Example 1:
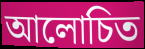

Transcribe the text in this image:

আলোচিত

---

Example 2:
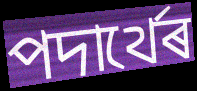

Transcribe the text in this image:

পদাৰ্থেৰ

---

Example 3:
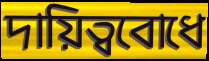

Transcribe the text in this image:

দায়িত্ববোধে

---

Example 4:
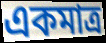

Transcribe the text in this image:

একমাত্ৰ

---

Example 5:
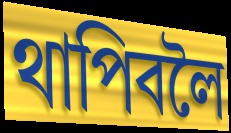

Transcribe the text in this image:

থাপিবলৈ